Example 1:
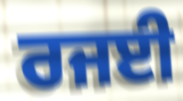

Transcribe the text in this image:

ਰਜਈ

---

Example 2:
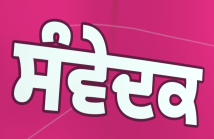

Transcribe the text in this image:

ਸੰਵੇਦਕ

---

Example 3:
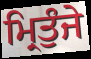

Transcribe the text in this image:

ਮ੍ਰਿਤੁੰਜੇ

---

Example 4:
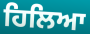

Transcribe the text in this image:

ਹਿਲਿਆ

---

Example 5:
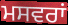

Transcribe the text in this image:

ਮਸਵਰਾਂ